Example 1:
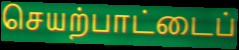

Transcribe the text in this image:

செயற்பாட்டைப்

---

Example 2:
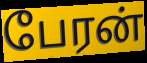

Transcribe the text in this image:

பேரன்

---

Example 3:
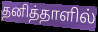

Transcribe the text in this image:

தனித்தாளில்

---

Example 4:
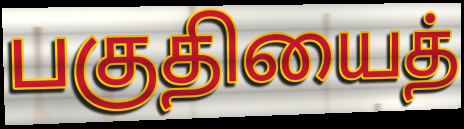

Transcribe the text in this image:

பகுதியைத்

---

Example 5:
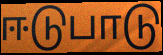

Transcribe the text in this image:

ஈடுபாடு